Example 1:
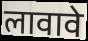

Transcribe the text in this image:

लावावे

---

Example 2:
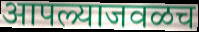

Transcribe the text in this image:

आपल्याजवळच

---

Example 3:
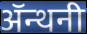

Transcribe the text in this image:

ॲन्थनी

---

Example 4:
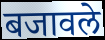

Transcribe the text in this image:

बजावले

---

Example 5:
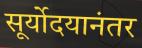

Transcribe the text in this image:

सूर्योदयानंतर